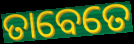
ତାବେତେ